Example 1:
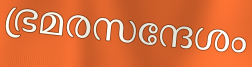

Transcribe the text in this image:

ഭ്രമരസന്ദേശം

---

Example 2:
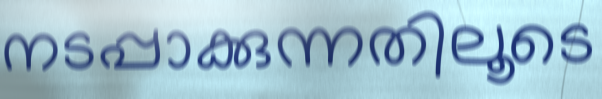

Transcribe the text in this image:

നടപ്പാക്കുന്നതിലൂടെ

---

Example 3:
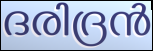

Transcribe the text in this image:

ദരിദ്രൻ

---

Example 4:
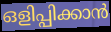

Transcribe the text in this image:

ഒളിപ്പിക്കാൻ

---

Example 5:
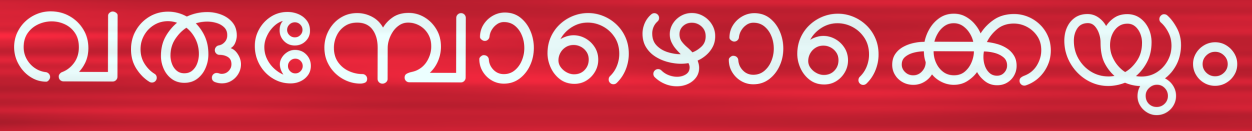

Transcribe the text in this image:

വരുമ്പോഴൊക്കെയും